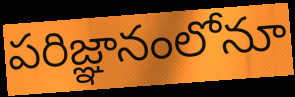
పరిజ్ఞానంలోనూ